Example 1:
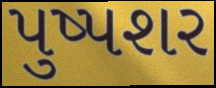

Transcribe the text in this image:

પુષ્પશર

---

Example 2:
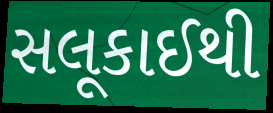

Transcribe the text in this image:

સલૂકાઈથી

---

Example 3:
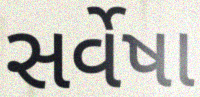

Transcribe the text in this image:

સર્વેષા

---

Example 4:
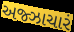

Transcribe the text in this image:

અજ્ઝાચારં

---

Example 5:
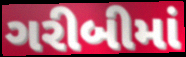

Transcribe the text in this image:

ગરીબીમાં